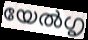
യേൽഗൃ